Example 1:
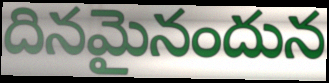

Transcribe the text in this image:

దినమైనందున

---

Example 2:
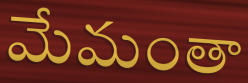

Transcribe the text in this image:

మేమంతా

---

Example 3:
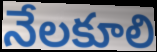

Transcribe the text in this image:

నేలకూలి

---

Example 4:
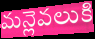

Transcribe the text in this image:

మన్లెవలుకి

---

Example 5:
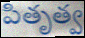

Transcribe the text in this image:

పితృత్వ